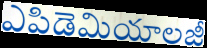
ఎపిడెమియాలజీ